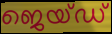
ജെയ്ഡ്